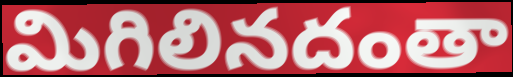
మిగిలినదంతా